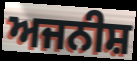
ਅਜਨੀਸ਼